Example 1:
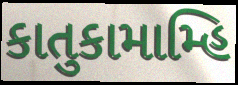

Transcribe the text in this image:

કાતુકામામ્હિ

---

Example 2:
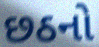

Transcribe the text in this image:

છઠનો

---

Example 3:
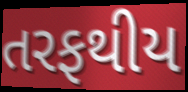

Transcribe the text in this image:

તરફથીય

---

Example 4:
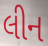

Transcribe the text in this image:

લીન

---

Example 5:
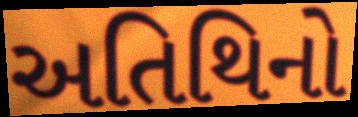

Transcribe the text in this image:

અતિથિનો